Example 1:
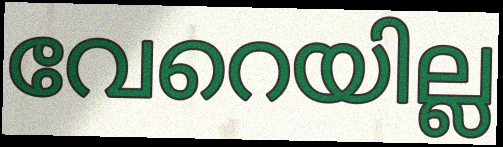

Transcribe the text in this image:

വേറെയില്ല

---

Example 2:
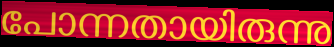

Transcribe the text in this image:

പോന്നതായിരുന്നു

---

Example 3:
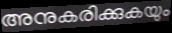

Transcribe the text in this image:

അനുകരിക്കുകയും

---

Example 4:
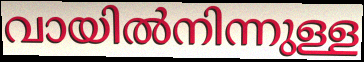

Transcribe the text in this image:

വായിൽനിന്നുള്ള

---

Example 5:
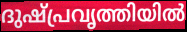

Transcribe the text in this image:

ദുഷ്പ്രവൃത്തിയിൽ